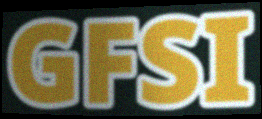
GFSI